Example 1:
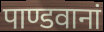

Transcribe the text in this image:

पाण्डवानां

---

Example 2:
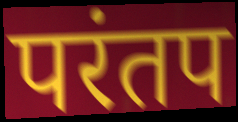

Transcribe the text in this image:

परंतप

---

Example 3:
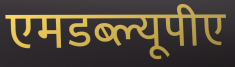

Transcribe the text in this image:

एमडब्ल्यूपीए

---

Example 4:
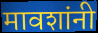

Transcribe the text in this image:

मावशांनी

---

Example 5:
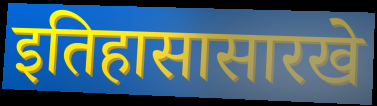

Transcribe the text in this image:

इतिहासासारखे